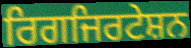
ਰਿਗਜਿਰਟੇਸ਼ਨ